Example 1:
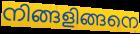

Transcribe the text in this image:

നിങ്ങളിങ്ങനെ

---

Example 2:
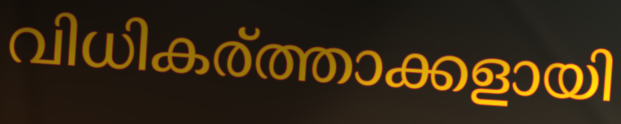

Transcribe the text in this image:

വിധികര്ത്താക്കളായി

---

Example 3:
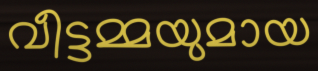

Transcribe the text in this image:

വീട്ടമ്മയുമായ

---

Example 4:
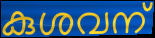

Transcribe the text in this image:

കുശവന്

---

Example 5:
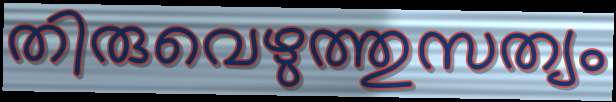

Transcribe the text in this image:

തിരുവെഴുത്തുസത്യം